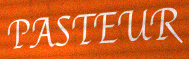
PASTEUR